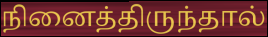
நினைத்திருந்தால்